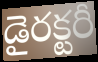
డైరక్టరీ